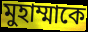
মুহাম্মাকে